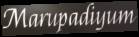
Marupadiyum